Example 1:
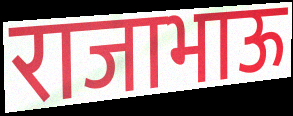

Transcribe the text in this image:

राजाभाऊ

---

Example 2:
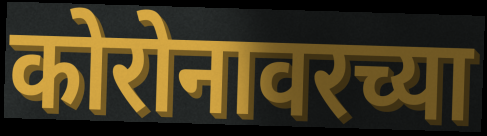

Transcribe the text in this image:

कोरोनावरच्या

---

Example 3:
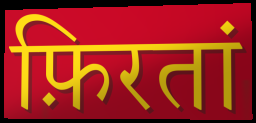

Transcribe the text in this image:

फ़िरतां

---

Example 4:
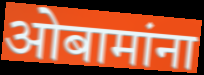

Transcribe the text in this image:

ओबामांना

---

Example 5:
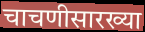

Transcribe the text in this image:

चाचणीसारख्या